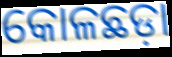
କୋଳଛଡ଼ା